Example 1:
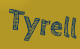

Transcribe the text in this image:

Tyrell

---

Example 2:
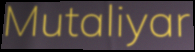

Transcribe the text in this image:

Mutaliyar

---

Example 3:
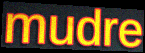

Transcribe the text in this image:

mudre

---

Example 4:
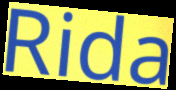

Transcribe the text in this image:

Rida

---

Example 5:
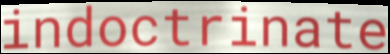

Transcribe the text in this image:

indoctrinate